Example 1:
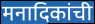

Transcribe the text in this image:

मनादिकांची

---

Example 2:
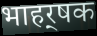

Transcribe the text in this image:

भाहर्षक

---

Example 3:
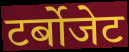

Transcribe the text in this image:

टर्बोजेट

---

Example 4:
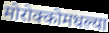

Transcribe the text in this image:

मोरोक्कोमधल्या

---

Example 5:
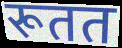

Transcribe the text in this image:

रूतत